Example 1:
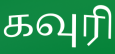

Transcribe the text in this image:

கவுரி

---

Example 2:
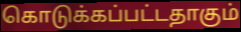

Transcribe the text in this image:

கொடுக்கப்பட்டதாகும்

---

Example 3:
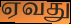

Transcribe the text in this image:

ஏவது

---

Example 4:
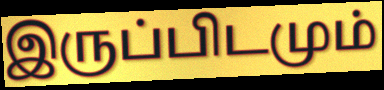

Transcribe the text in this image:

இருப்பிடமும்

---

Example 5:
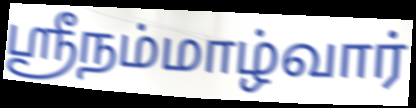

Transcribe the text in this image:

ஸ்ரீநம்மாழ்வார்